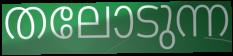
തലോടുന്ന